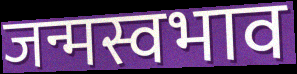
जन्मस्वभाव